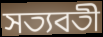
সত্যবতী